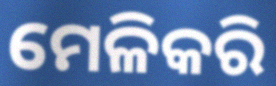
ମେଳିକରି